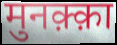
मुनक़्क़ा